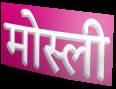
मोस्ली